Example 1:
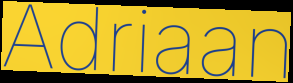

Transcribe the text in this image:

Adriaan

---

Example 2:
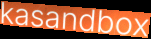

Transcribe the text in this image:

kasandbox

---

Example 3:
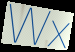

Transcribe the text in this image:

Wx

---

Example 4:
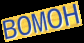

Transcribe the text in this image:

BOMOH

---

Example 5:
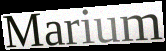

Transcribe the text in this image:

Marium